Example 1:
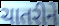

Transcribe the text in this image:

ચાતરીને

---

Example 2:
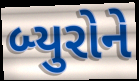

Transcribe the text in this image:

બ્યુરોને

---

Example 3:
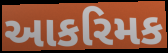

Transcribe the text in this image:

આકરિમક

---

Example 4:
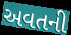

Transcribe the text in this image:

અવતની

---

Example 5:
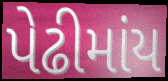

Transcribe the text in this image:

પેઢીમાંય